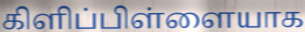
கிளிப்பிள்ளையாக